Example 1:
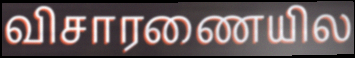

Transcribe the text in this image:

விசாரணையில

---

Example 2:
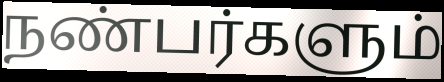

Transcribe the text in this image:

நண்பர்களும்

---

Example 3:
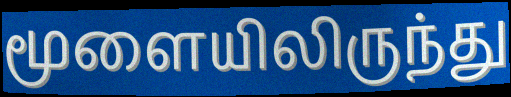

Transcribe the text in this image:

மூளையிலிருந்து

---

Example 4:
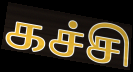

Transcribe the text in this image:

கச்சி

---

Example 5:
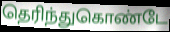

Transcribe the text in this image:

தெரிந்துகொண்டே